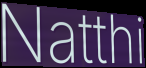
Natthi